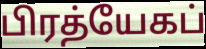
பிரத்யேகப்